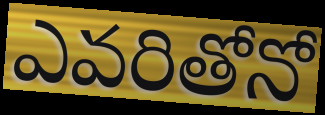
ఎవరితోనో